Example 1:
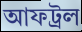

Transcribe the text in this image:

আফট্রল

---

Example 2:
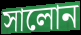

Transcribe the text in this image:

সালোন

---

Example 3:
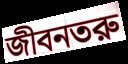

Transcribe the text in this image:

জীবনতরু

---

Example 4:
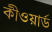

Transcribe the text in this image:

কীওয়ার্ড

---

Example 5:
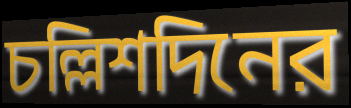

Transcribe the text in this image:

চল্লিশদিনের